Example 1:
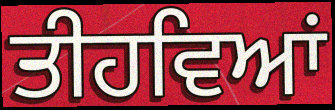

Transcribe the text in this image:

ਤੀਹਵਿਆਂ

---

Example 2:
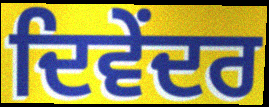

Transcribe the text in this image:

ਦਿਵੇਂਦਰ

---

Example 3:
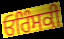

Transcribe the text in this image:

ਓਰਿੰਸਕੀ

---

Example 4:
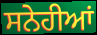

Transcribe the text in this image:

ਸਨੇਹੀਆਂ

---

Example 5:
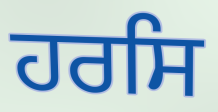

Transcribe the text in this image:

ਹਰਸਿ